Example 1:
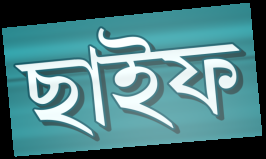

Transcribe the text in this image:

ছাইফ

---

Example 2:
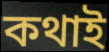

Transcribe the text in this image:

কথাই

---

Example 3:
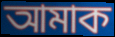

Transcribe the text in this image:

আমাক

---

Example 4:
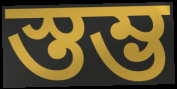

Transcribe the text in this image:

স্তম্ভ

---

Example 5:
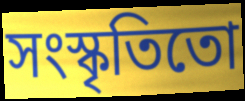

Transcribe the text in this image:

সংস্কৃতিতো